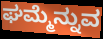
ಘಮ್ಮೆನ್ನುವ